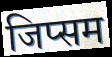
जिप्सम